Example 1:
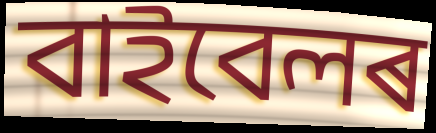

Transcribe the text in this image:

বাইবেলৰ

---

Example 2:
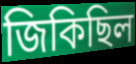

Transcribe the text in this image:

জিকিছিল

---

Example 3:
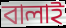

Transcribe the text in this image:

বালাই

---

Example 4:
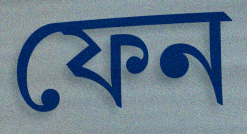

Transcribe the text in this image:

ফেন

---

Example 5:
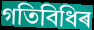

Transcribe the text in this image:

গতিবিধিৰ